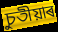
চুতীয়াৰ